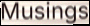
Musings